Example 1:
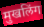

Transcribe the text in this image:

मुखलिंग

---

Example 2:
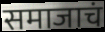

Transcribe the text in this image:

समाजाचं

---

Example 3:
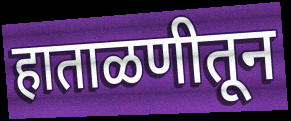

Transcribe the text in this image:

हाताळणीतून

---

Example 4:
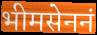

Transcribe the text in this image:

भीमसेननं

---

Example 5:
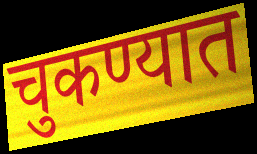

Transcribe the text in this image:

चुकण्यात